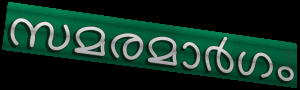
സമരമാർഗം